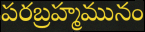
పరబ్రహ్మమునం